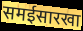
समईसारखा